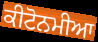
ਕੀਟੋਨਮੀਆ